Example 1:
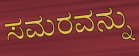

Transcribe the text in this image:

ಸಮರವನ್ನು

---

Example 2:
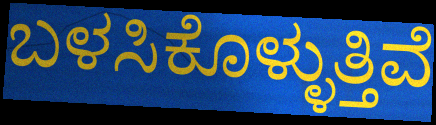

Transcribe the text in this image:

ಬಳಸಿಕೊಳ್ಳುತ್ತಿವೆ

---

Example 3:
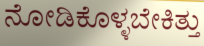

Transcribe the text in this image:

ನೋಡಿಕೊಳ್ಳಬೇಕಿತ್ತು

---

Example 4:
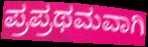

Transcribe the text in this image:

ಪ್ರಪ್ರಥಮವಾಗಿ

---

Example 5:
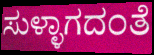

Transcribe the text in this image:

ಸುಳ್ಳಾಗದಂತೆ